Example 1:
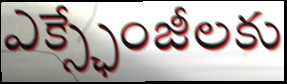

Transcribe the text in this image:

ఎక్స్ఛేంజీలకు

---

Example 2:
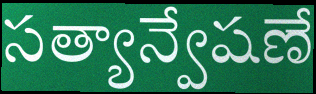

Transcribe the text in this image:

సత్యాన్వేషణే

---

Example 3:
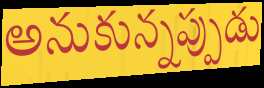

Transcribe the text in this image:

అనుకున్నప్పుడు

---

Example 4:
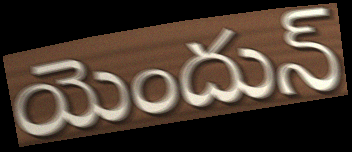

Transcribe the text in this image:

యెందున్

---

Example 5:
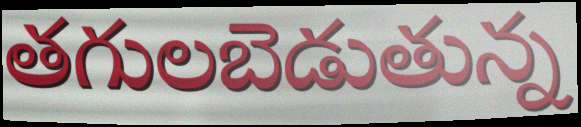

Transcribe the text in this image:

తగులబెడుతున్న